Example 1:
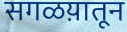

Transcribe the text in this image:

सगळय़ातून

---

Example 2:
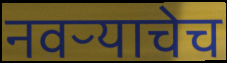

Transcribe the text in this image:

नवऱ्याचेच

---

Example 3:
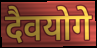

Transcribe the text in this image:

दैवयोगे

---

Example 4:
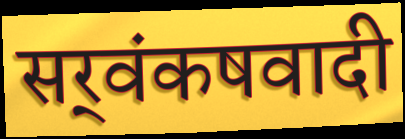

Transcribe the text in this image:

सर्वंकषवादी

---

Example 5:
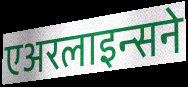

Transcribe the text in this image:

एअरलाइन्सने